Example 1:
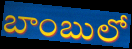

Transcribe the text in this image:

బాంబులో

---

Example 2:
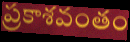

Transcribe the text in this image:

ప్రకాశవంతం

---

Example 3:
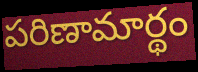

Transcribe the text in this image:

పరిణామార్థం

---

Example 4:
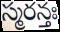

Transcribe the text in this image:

స్మరన్తః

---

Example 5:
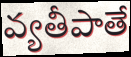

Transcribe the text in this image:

వ్యతీపాతే